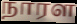
நாரள